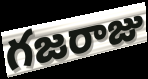
గజరాజు